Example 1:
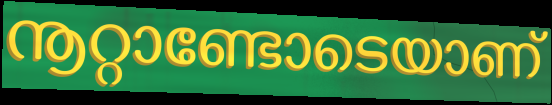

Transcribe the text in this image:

നൂറ്റാണ്ടോടെയാണ്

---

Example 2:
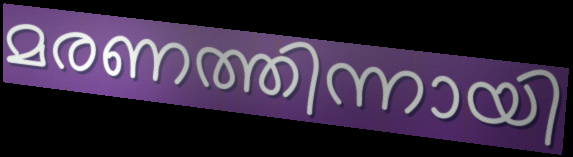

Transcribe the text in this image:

മരണത്തിന്നായി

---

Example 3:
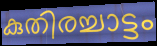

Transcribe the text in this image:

കുതിരച്ചാട്ടം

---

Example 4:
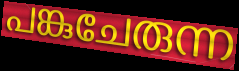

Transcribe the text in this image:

പങ്കുചേരുന്ന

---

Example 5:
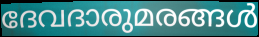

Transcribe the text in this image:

ദേവദാരുമരങ്ങൾ